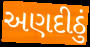
અણદીઠું